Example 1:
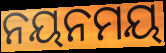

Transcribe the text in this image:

ନୟନମୟ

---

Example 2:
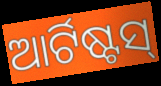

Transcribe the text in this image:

ଆର୍ଟିଷ୍ଟସ୍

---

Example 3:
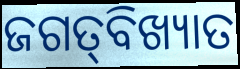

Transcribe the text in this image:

ଜଗତ୍‌ବିଖ୍ୟାତ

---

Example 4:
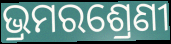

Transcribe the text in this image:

ଭ୍ରମରଶ୍ରେଣୀ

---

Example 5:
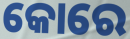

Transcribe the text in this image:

କୋରେ